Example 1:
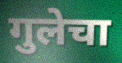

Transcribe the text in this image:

गुलेचा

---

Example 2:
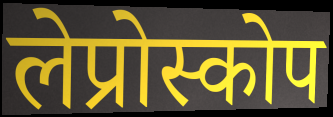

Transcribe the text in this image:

लेप्रोस्कोप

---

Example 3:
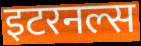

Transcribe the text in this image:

इटरनल्स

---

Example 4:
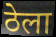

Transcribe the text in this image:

ठेला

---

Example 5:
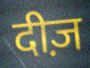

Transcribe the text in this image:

दीज़